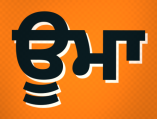
ਊਮਾ